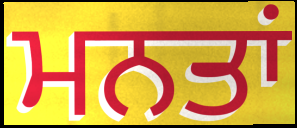
ਮਨਤਾਂ